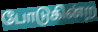
போடுகின்ற